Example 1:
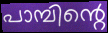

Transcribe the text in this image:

പാമ്പിന്റെ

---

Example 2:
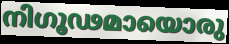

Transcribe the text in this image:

നിഗൂഢമായൊരു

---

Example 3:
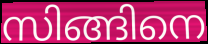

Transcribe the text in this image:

സിങ്ങിനെ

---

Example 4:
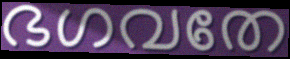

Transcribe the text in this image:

ഭഗവതേ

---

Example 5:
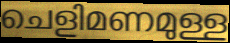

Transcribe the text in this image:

ചെളിമണമുള്ള